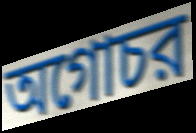
অগোচর